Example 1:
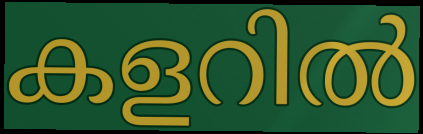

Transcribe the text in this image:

കളറിൽ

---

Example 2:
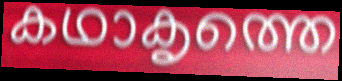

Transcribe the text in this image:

കഥാകൃത്തെ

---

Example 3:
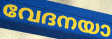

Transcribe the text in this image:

വേദനയാ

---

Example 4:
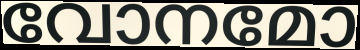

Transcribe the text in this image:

വോനമോ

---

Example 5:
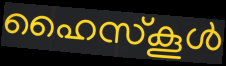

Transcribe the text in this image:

ഹൈസ്കൂൾ